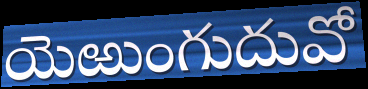
యెఱుంగుదువో